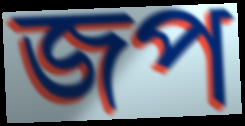
জপ